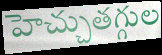
హెచ్చుతగ్గుల